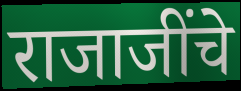
राजाजींचे